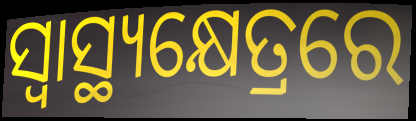
ସ୍ୱାସ୍ଥ୍ୟକ୍ଷେତ୍ରରେ